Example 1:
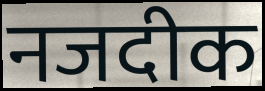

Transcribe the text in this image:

नजदीक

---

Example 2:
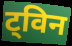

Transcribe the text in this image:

ट्विन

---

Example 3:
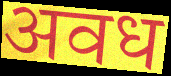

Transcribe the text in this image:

अवध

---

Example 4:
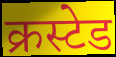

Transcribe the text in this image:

क्रस्टेड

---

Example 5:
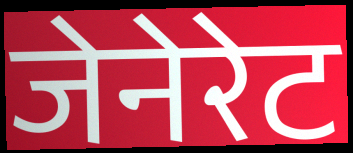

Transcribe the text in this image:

जेनेरेट